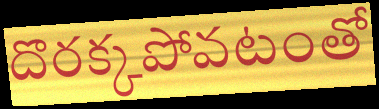
దొరక్కపోవటంతో